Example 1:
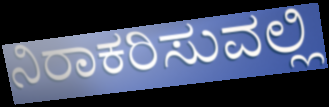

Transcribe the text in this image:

ನಿರಾಕರಿಸುವಲ್ಲಿ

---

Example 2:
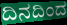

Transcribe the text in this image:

ದಿನದಿಂದ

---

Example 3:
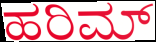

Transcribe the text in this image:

ಹರಿಮ್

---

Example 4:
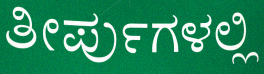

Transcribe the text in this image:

ತೀರ್ಪುಗಳಲ್ಲಿ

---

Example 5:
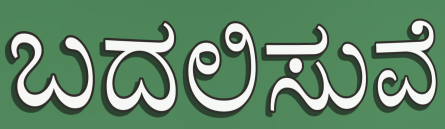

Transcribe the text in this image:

ಬದಲಿಸುವೆ